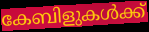
കേബിളുകൾക്ക്